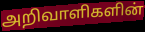
அறிவாளிகளின்